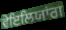
ਵੇਇਲਿਯਾਂਗ